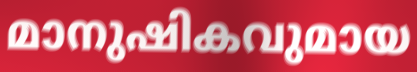
മാനുഷികവുമായ